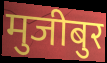
मुजीबुर